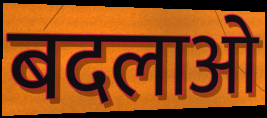
बदलाओ